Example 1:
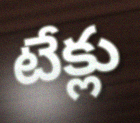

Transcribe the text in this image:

టేక్లు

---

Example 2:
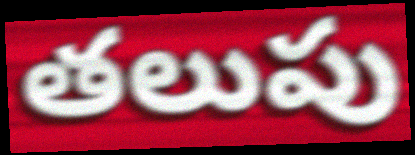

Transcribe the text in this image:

తలుపు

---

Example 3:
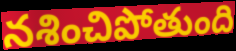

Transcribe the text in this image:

నశించిపోతుంది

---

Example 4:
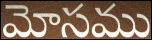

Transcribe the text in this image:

మోసము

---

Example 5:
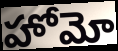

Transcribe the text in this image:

హోమో